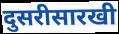
दुसरीसारखी